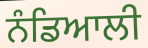
ਨੰਡਿਆਲੀ